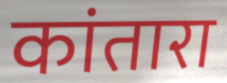
कांतारा